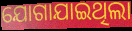
ଯୋଗାଯାଇଥିଲା